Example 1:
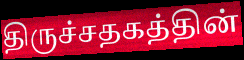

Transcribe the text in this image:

திருச்சதகத்தின்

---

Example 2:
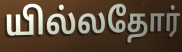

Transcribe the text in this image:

யில்லதோர்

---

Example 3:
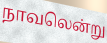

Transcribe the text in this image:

நாவலென்று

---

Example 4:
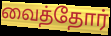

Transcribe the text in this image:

வைத்தோர்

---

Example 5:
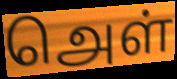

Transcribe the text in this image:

அெள்